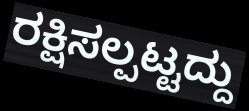
ರಕ್ಷಿಸಲ್ಪಟ್ಟದ್ದು